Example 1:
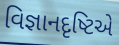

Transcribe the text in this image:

વિજ્ઞાનદૃષ્ટિએ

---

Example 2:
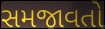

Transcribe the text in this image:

સમજાવતો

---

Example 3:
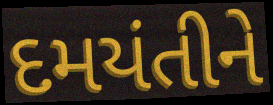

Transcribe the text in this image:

દમયંતીને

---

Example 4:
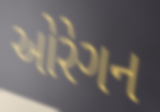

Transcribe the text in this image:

ઓરેગન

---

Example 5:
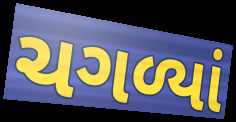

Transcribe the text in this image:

ચગળ્યાં